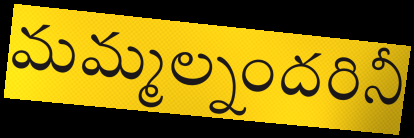
మమ్మల్నందరినీ